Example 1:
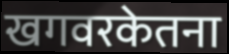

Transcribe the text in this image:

खगवरकेतना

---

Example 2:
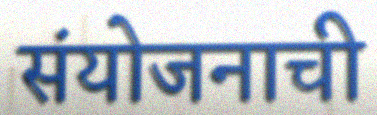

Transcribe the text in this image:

संयोजनाची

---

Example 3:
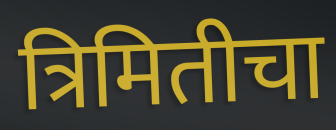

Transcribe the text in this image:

त्रिमितीचा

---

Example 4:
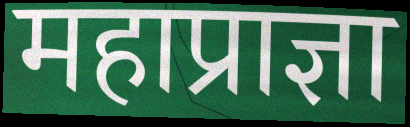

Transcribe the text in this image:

महाप्राज्ञा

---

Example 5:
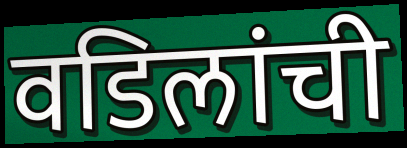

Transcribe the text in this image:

वडिलांची